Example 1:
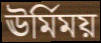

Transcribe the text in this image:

ঊর্মিময়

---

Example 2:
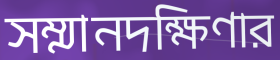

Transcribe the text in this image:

সম্মানদক্ষিণার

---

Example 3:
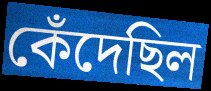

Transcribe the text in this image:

কেঁদেছিল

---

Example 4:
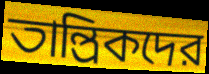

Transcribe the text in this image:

তান্ত্রিকদের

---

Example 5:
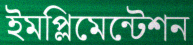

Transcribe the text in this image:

ইমপ্লিমেন্টেশন